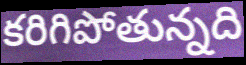
కరిగిపోతున్నది